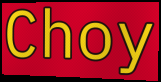
Choy